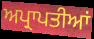
ਅਪ੍ਰਾਪਤੀਆਂ